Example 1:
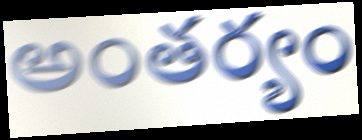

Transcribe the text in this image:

అంతర్యం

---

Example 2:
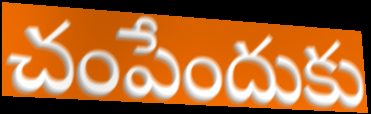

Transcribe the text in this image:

చంపేందుకు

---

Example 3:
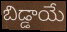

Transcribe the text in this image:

బిడ్డాయే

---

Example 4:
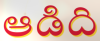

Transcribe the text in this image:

ఆడిది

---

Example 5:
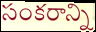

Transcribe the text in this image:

సంకరాన్ని